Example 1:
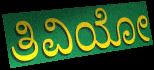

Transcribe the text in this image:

ತಿವಿಯೋ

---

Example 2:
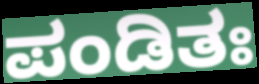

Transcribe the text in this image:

ಪಂಡಿತಃ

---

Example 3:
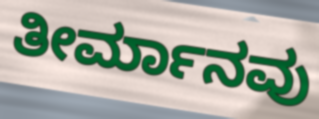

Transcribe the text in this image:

ತೀರ್ಮಾನವು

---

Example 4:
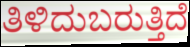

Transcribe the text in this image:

ತಿಳಿದುಬರುತ್ತಿದೆ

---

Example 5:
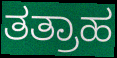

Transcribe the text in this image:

ತತ್ರಾಹ